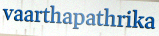
vaarthapathrika